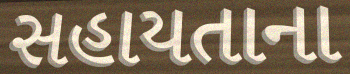
સહાયતાના